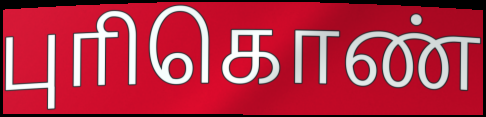
புரிகொண்